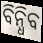
ବିନ୍ଧିବ